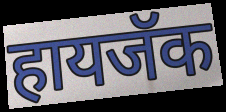
हायजॅक